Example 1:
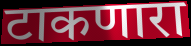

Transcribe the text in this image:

टाकणारा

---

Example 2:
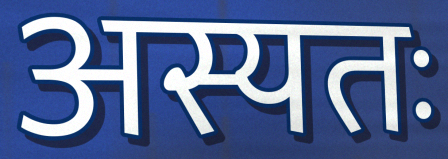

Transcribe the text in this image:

अस्यतः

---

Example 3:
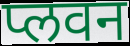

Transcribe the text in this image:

प्लवन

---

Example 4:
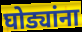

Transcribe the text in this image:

घोड्यांना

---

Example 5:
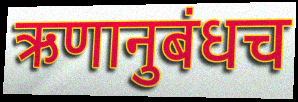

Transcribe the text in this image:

ऋणानुबंधच